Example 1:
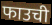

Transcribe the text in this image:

फाउची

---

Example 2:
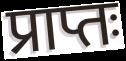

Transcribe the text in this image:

प्राप्तः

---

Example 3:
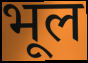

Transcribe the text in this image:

भूल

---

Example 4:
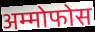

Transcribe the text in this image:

अम्मोफोस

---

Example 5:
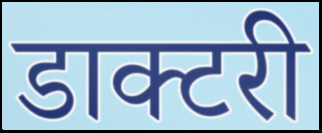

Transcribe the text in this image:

डाक्टरी